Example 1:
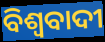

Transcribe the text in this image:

ବିଶ୍ବବାଦୀ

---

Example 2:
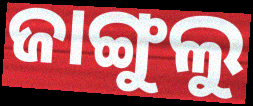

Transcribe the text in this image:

ଜାଙ୍ଗୁଲୁ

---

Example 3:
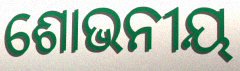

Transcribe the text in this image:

ଶୋଭନୀୟ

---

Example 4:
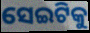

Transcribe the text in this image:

ସେଇଟିକୁ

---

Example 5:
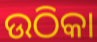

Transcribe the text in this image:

ଉଠିକା